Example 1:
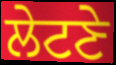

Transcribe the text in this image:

ਲੇਟਣੇ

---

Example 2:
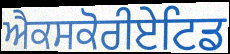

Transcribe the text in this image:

ਐਕਸਕੋਰੀਏਟਿਡ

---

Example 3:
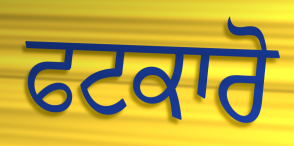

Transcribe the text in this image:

ਫਟਕਾਰੋ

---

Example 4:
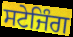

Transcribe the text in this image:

ਸਟੇਜਿੰਗ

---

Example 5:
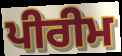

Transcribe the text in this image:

ਪੀਰੀਮ